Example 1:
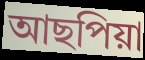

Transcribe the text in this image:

আছপিয়া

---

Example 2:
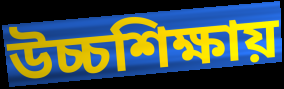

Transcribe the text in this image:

উচ্চশিক্ষায়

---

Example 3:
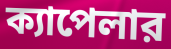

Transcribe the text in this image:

ক্যাপেলার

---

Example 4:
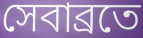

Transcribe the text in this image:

সেবাব্রতে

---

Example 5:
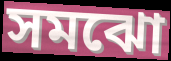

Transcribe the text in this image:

সমঝো